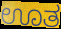
ಊತ